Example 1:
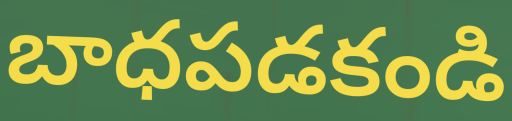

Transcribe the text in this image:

బాధపడకండి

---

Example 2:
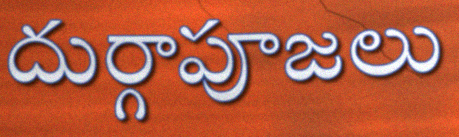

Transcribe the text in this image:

దుర్గాపూజలు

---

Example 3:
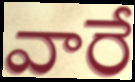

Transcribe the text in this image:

వారే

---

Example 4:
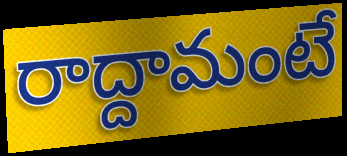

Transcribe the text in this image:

రాద్దామంటే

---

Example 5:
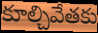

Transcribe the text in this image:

కూల్చివేతకు